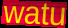
watu